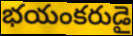
భయంకరుడై